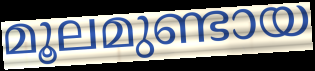
മൂലമുണ്ടായ